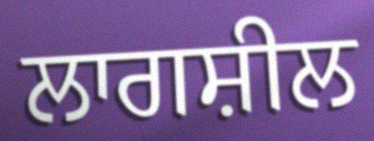
ਲਾਗਸ਼ੀਲ